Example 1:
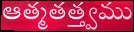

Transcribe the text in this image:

ఆత్మతత్త్వము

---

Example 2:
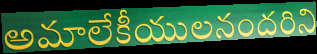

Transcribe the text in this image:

అమాలేకీయులనందరిని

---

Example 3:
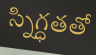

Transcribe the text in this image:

స్నిగ్ధతతో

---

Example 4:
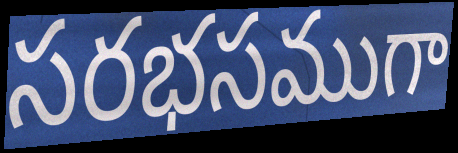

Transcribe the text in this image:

సరభసముగా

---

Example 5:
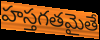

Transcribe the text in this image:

హస్తగతమైతే